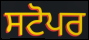
ਸਟੋਪਰ